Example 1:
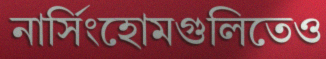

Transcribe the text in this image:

নার্সিংহোমগুলিতেও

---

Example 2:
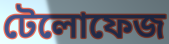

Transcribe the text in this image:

টেলোফেজ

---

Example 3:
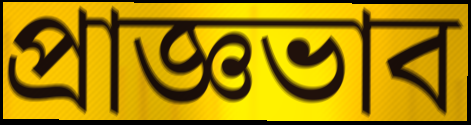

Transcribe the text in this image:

প্রাজ্ঞভাব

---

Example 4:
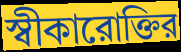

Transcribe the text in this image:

স্বীকারোক্তির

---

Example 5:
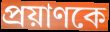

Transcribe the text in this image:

প্রয়াণকে